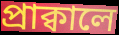
প্রাক্বালে